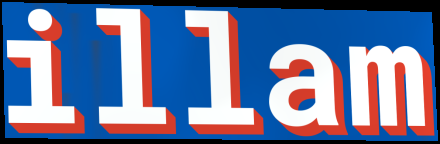
illam